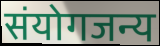
संयोगजन्य